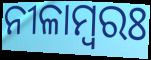
ନୀଳାମ୍ବରଃ